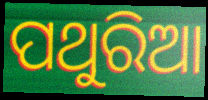
ପଥୁରିଆ